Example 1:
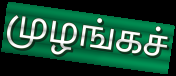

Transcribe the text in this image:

முழங்கச்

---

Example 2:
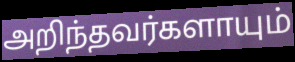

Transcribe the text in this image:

அறிந்தவர்களாயும்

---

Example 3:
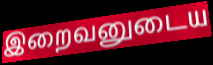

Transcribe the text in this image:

இறைவனுடைய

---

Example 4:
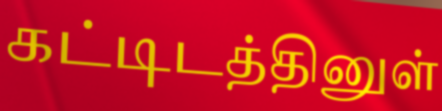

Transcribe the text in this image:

கட்டிடத்தினுள்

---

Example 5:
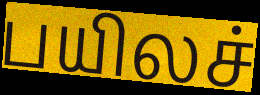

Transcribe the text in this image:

பயிலச்